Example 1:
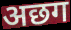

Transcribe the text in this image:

अछग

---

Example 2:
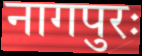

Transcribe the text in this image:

नागपुरः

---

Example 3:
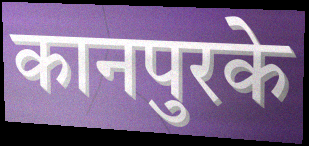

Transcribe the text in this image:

कानपुरके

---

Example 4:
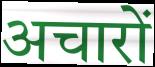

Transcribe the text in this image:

अचारों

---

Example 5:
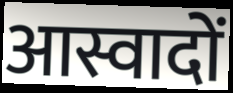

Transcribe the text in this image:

आस्वादों